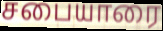
சபையாரை